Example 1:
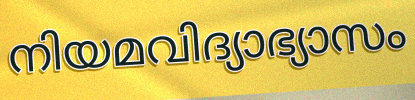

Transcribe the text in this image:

നിയമവിദ്യാഭ്യാസം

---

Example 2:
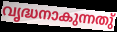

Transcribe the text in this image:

വൃദ്ധനാകുന്നതു്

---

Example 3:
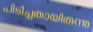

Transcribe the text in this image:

പിടിച്ചതായിരുന്നു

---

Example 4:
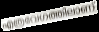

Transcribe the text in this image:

എത്രവേഗത്തിലാണ്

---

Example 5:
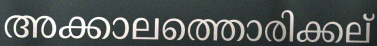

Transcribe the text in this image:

അക്കാലത്തൊരിക്കല്